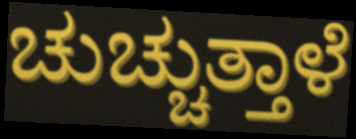
ಚುಚ್ಚುತ್ತಾಳೆ